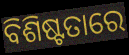
ବିଶିଷ୍ଟତାରେ